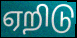
ஏறிடு